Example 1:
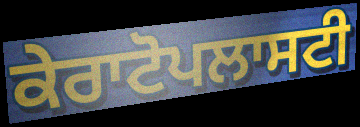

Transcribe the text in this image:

ਕੇਰਾਟੋਪਲਾਸਟੀ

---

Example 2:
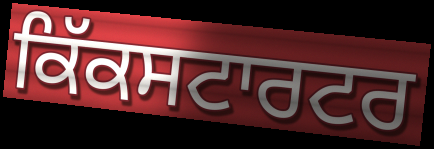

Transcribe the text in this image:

ਕਿੱਕਸਟਾਰਟਰ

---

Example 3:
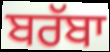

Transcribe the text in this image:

ਬਰੱਬਾ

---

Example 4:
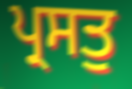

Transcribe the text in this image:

ਪ੍ਰਸਤੁ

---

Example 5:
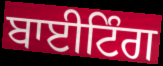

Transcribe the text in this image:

ਬਾਈਟਿੰਗ